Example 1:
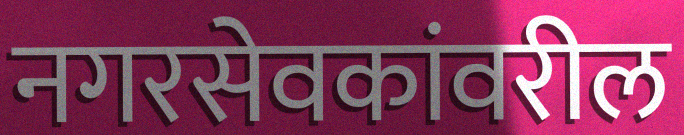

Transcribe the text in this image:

नगरसेवकांवरील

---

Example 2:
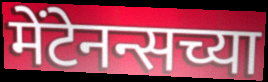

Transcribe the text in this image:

मेंटेनन्सच्या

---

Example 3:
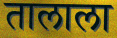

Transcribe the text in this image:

तालाला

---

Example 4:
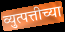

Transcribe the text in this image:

व्युत्पत्तीच्या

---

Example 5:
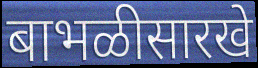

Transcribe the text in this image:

बाभळीसारखे